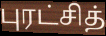
புரட்சித்